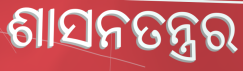
ଶାସନତନ୍ତ୍ରର